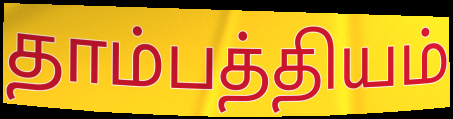
தாம்பத்தியம்